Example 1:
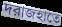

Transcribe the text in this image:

দরাজহাতে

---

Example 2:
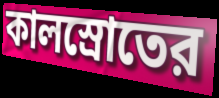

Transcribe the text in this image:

কালস্রোতের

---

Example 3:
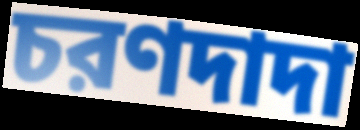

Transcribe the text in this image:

চরণদাদা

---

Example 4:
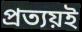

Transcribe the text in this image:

প্রত্যয়ই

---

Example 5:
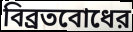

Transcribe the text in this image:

বিব্রতবোধের